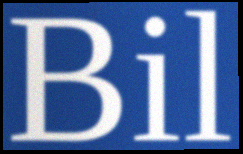
Bil